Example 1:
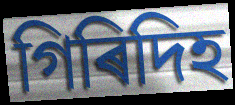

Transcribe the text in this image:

গিৰিদিহ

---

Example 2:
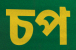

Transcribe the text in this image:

চপ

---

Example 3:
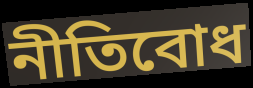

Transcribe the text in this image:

নীতিবোধ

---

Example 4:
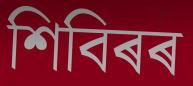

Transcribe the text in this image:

শিবিৰৰ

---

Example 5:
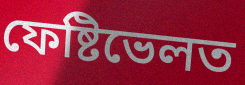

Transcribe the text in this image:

ফেষ্টিভেলত